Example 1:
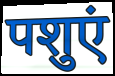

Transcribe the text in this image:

पशुएं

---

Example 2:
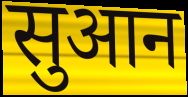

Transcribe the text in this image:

सुआन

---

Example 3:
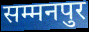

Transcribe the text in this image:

सम्मनपुर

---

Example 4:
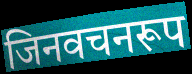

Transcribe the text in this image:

जिनवचनरूप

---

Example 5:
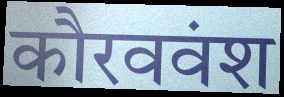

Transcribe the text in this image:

कौरववंश